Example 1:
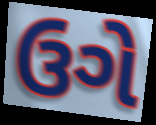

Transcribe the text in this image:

ઉગે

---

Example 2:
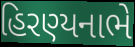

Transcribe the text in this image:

હિરણ્યનાભે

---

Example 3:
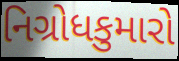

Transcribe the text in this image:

નિગ્રોધકુમારો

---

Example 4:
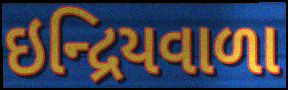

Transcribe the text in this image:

ઇન્દ્રિયવાળા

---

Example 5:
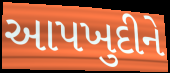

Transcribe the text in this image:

આપખુદીને